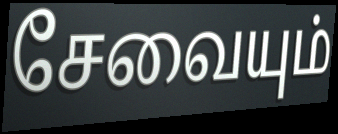
சேவையும்